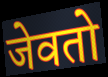
जेवतो